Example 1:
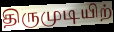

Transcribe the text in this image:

திருமுடியிற்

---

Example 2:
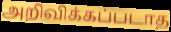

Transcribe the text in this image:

அறிவிக்கப்படாத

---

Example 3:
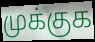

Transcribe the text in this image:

முக்குக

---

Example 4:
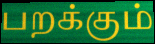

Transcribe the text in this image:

பறக்கும்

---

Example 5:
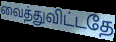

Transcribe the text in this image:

வைத்துவிட்டதே